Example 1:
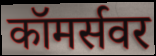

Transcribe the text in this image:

कॉमर्सवर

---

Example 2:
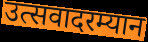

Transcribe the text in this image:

उत्सवादरम्यान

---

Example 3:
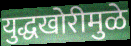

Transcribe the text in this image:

युद्धखोरीमुळे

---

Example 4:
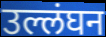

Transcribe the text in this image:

उल्लंघन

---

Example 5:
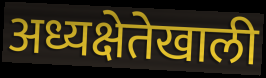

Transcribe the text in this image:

अध्यक्षेतेखाली